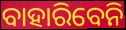
ବାହାରିବେନି